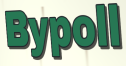
Bypoll